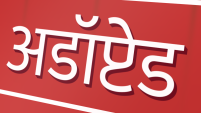
अडॉप्टेड